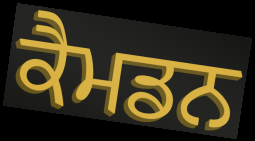
ਕੈਮਡਨ